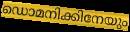
ഡൊമനിക്കിനേയും